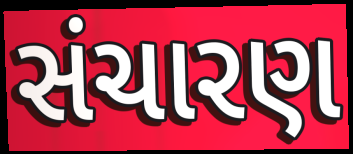
સંચારણ